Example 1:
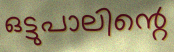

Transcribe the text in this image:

ഒട്ടുപാലിന്റെ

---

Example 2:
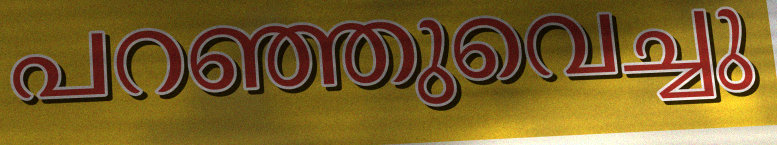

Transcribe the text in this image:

പറഞ്ഞുവെച്ചു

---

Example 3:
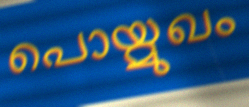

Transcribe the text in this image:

പൊയ്മുഖം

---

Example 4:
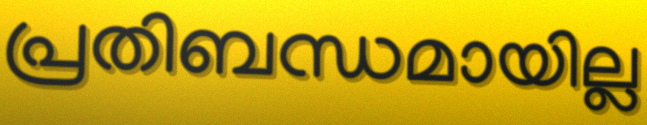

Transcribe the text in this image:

പ്രതിബന്ധമായില്ല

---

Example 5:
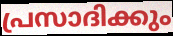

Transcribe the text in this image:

പ്രസാദിക്കും